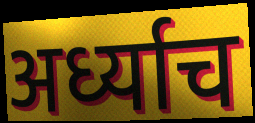
अर्ध्याच